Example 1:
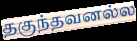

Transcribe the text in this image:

தகுந்தவனல்ல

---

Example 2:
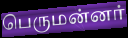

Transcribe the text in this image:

பெருமன்னர்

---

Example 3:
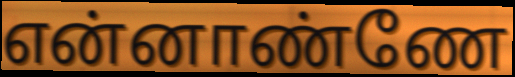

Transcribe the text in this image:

என்னாண்ணே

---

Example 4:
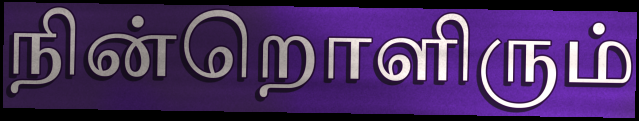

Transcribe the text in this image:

நின்றொளிரும்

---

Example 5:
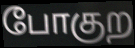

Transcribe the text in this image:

போகுற